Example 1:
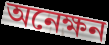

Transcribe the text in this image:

অনেক্ষন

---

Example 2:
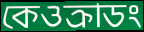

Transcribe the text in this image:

কেওক্রাডং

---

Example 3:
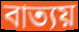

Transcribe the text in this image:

বাত্যয়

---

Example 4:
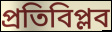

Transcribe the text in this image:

প্রতিবিপ্লব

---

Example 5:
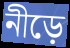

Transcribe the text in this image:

নীড়ে